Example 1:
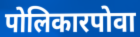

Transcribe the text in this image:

पोलिकारपोवा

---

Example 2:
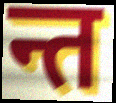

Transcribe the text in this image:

न्त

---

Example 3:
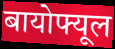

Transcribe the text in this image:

बायोफ्यूल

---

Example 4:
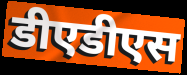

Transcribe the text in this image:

डीएडीएस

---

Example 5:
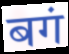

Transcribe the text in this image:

बगं